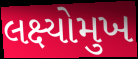
લક્ષ્યોમુખ